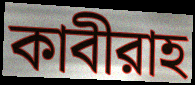
কাবীরাহ